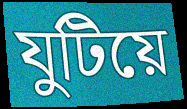
যুটিয়ে